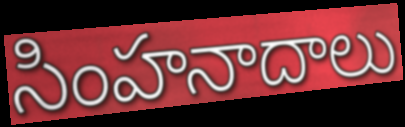
సింహనాదాలు